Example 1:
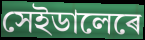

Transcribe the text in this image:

সেইডালেৰে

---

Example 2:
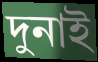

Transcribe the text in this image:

দুনাই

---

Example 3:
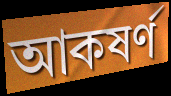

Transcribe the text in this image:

আকষৰ্ণ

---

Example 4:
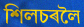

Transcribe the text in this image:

শিলচৰলৈ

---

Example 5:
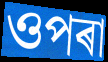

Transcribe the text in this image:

ওপৰা